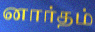
னார்தம்